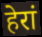
हेरां